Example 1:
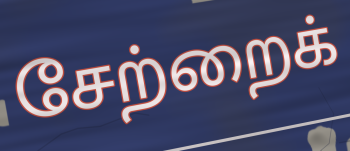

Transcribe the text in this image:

சேற்றைக்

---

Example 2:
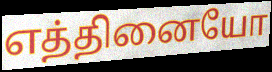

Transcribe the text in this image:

எத்தினையோ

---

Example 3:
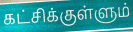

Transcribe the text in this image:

கட்சிக்குள்ளும்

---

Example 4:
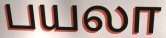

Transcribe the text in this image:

பயலா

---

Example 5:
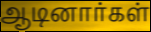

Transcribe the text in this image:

ஆடினார்கள்